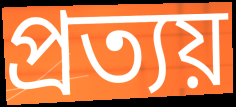
প্ৰত্যয়